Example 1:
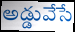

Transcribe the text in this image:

అడ్డువేసే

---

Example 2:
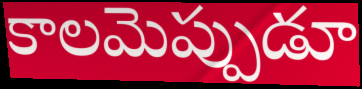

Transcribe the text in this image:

కాలమెప్పుడూ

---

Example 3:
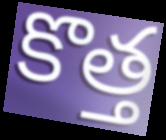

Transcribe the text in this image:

కొత్త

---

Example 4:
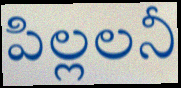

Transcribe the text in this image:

పిల్లలనీ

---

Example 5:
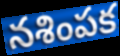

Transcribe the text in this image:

నశింపక